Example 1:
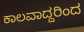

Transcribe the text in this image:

ಕಾಲವಾದ್ದರಿಂದ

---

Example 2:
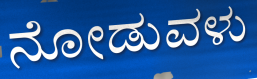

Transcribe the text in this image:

ನೋಡುವಳು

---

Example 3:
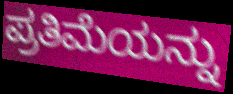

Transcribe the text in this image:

ಪ್ರತಿಮೆಯನ್ನು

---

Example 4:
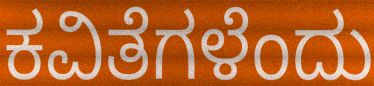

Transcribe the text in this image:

ಕವಿತೆಗಳೆಂದು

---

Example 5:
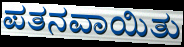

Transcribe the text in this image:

ಪತನವಾಯಿತು